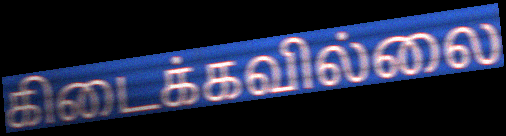
கிடைக்கவில்லை